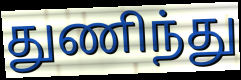
துணிந்து